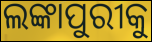
ଲଙ୍କାପୁରୀକୁ